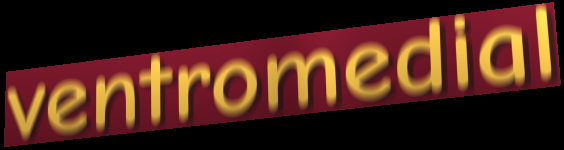
ventromedial